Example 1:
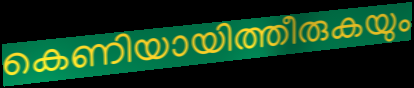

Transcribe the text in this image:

കെണിയായിത്തീരുകയും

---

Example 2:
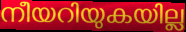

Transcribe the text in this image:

നീയറിയുകയില്ല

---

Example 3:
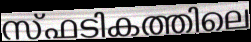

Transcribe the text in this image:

സ്ഫടികത്തിലെ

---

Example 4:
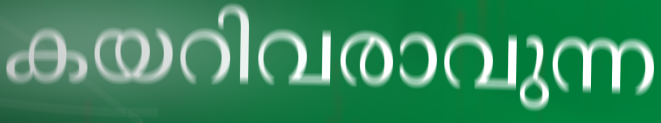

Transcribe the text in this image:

കയറിവരാവുന്ന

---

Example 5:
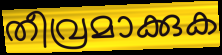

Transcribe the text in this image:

തീവ്രമാക്കുക